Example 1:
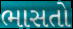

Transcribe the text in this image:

ભાસતો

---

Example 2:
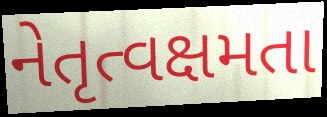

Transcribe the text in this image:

નેતૃત્વક્ષમતા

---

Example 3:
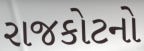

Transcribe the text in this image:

રાજકોટનો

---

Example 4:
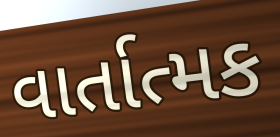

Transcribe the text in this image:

વાર્તાત્મક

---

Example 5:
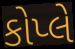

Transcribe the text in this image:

કોપ્લે